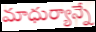
మాధుర్యాన్నే